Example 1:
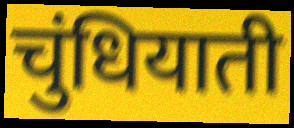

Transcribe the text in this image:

चुंधियाती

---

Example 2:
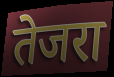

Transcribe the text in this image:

तेजरा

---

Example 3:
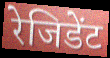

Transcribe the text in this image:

रेजिडेंट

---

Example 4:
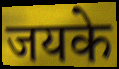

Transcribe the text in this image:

जयके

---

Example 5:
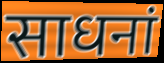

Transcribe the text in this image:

साधनां